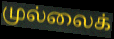
முல்லைக்